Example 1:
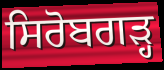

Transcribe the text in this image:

ਸਿਰੋਬਗੜ੍ਹ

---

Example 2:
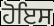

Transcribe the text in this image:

ਹੋਇਸ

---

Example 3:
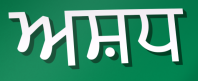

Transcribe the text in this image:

ਅਸ਼ਧ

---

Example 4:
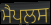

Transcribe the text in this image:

ਮੈਪਲਸ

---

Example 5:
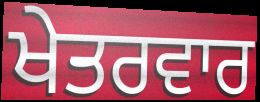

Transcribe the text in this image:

ਖੇਤਰਵਾਰ